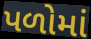
પળોમાં